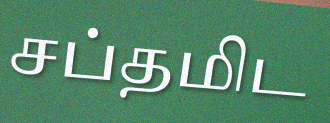
சப்தமிட